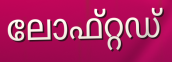
ലോഫ്റ്റഡ്